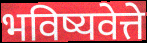
भविष्यवेत्ते